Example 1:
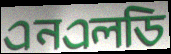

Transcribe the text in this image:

এনএলডি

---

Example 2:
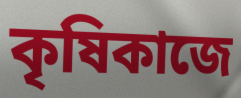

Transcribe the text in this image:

কৃষিকাজে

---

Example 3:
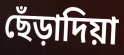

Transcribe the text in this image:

ছেঁড়াদিয়া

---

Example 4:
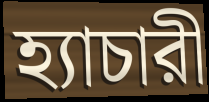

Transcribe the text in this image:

হ্যাচারী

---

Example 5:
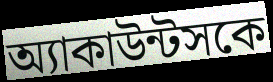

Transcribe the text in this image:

অ্যাকাউন্টসকে